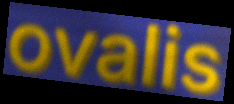
ovalis